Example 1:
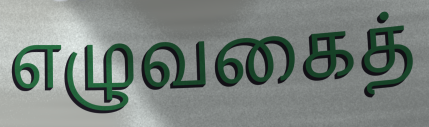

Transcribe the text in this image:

எழுவகைத்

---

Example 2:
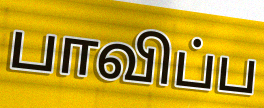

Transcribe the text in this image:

பாவிப்ப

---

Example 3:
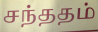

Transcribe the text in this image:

சந்ததம்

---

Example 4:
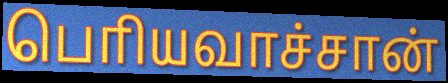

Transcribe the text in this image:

பெரியவாச்சான்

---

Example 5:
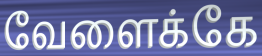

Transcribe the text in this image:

வேளைக்கே